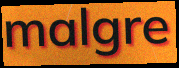
malgre